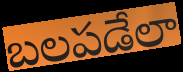
బలపడేలా